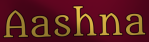
Aashna